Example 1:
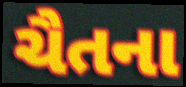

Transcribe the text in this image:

ચૈતના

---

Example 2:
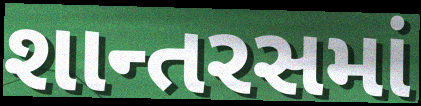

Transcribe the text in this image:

શાન્તરસમાં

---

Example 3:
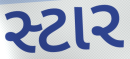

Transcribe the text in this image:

સ્ટાર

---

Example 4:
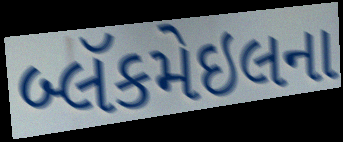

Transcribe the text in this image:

બ્લૅકમેઇલના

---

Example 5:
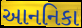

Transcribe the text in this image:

આનનિકા